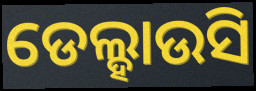
ଡେଲ୍ହାଉସି